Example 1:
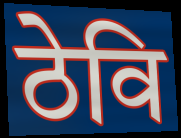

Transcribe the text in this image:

ठेवि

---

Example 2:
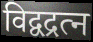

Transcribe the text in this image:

विद्वद्रत्न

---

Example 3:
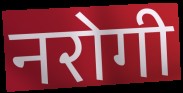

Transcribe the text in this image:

नरोगी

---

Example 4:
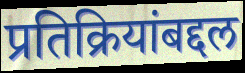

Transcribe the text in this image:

प्रतिक्रियांबद्दल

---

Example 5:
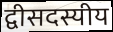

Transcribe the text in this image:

द्वीसदस्यीय